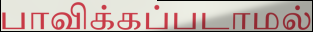
பாவிக்கப்படாமல்